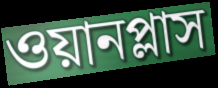
ওয়ানপ্লাস